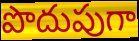
పొదుపుగా